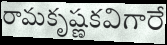
రామకృష్ణకవిగారే